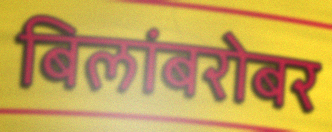
बिलांबरोबर